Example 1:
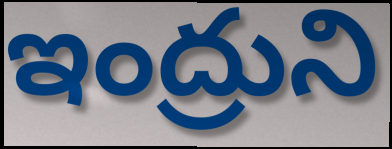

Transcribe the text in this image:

ఇంద్రుని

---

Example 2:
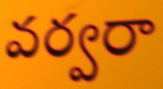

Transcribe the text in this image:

వర్వరా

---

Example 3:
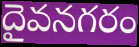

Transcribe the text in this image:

దైవనగరం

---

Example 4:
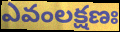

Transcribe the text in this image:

ఎవంలక్షణః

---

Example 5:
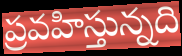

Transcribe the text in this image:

ప్రవహిస్తున్నది